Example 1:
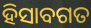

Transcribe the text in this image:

ହିସାବଗତ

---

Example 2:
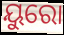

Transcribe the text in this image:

ୟୁରୋ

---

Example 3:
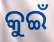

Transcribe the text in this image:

କୁଇଁ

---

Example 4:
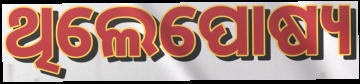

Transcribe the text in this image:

ଥିଲେପୋଷ୍ୟ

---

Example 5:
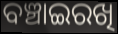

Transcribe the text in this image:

ବଞ୍ଚାଇରଖି